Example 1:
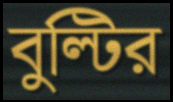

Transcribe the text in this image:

বুল্টির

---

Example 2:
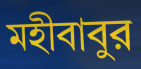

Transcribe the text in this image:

মহীবাবুর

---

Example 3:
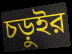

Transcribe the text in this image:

চড়ুইর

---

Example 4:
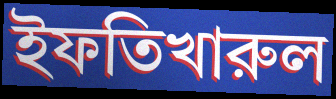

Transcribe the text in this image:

ইফতিখারুল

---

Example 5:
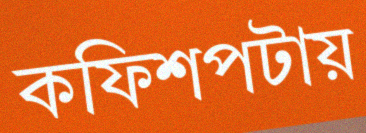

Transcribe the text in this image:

কফিশপটায়